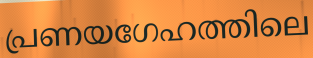
പ്രണയഗേഹത്തിലെ